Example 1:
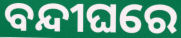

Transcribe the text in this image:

ବନ୍ଦୀଘରେ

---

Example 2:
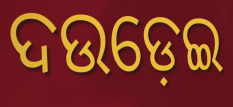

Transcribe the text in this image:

ଦଉଡ଼େଇ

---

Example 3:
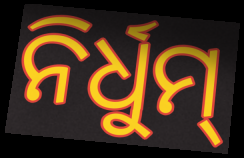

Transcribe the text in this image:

ନିର୍ଧୁମ୍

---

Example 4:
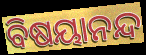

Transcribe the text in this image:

ବିଷୟାନନ୍ଦ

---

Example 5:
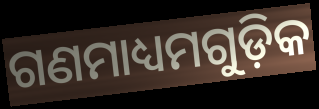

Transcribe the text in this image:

ଗଣମାଧ୍ୟମଗୁଡ଼ିକ